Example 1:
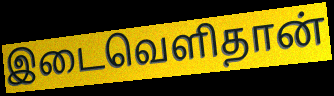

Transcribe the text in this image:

இடைவெளிதான்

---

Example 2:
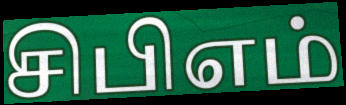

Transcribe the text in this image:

சிபிஎம்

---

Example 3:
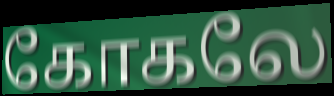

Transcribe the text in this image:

கோகலே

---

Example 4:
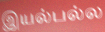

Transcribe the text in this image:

இயல்பல்ல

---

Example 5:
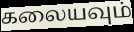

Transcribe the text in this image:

கலையவும்